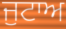
ਜੁਟਾਅ